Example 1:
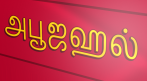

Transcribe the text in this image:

அபூஜஹல்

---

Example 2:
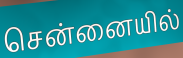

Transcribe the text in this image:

சென்னையில்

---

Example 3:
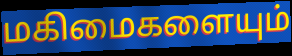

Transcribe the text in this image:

மகிமைகளையும்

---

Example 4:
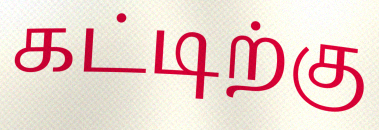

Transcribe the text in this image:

கட்டிற்கு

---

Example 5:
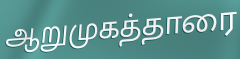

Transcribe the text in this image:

ஆறுமுகத்தாரை